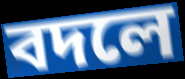
বদলে